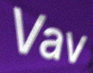
Vav